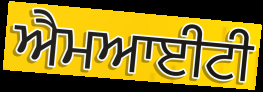
ਐਮਆਈਟੀ